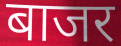
बाजर